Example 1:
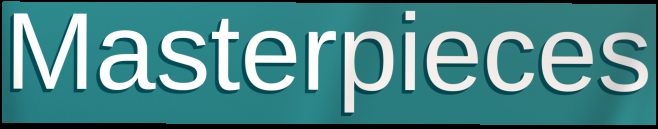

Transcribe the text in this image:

Masterpieces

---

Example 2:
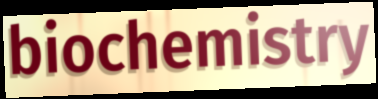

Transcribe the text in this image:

biochemistry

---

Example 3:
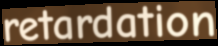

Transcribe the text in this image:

retardation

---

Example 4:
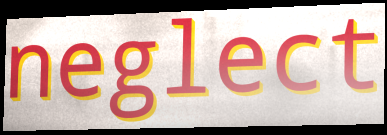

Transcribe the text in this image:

neglect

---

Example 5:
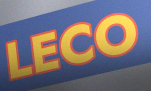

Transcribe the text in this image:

LECO